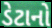
ડેટાનો